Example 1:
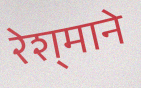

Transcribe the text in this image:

रेश्माने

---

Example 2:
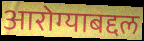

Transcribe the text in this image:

आरोग्याबद्दल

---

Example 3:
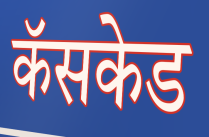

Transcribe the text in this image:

कॅसकेड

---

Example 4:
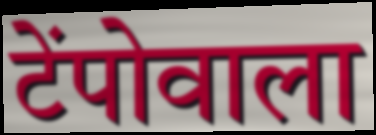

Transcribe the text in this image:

टेंपोवाला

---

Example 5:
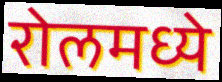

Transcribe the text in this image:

रोलमध्ये